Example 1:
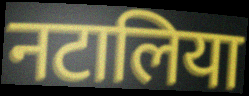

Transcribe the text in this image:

नटालिया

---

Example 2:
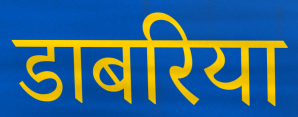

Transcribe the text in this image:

डाबरिया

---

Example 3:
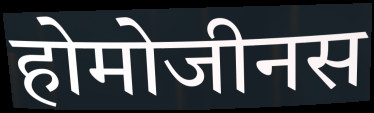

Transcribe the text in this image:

होमोजीनस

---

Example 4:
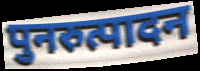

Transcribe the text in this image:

पुनरुत्पादन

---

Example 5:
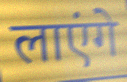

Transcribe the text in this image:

लाएंगे